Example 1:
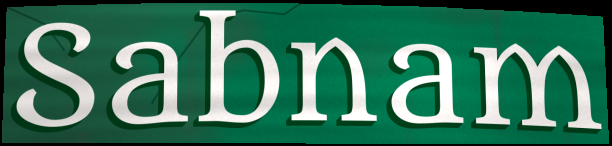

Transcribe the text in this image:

Sabnam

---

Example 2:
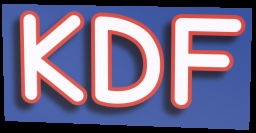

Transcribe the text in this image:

KDF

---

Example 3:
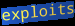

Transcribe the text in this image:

exploits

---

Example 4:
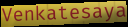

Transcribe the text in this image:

Venkatesaya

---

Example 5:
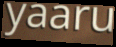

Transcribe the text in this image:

yaaru